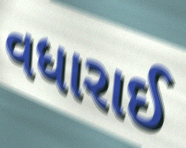
વધારાઈ